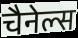
चैनेल्स